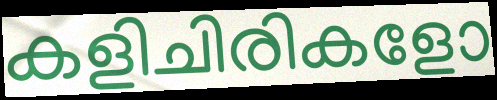
കളിചിരികളോ